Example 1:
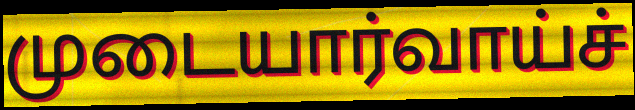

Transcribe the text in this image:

முடையார்வாய்ச்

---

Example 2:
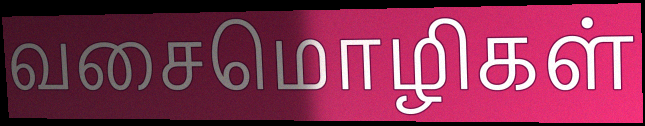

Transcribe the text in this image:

வசைமொழிகள்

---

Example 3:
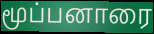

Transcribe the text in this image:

மூப்பனாரை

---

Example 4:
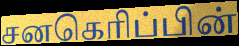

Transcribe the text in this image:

சனகெரிப்பின்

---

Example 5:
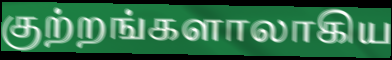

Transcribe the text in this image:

குற்றங்களாலாகிய